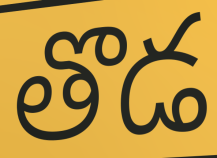
తొడ